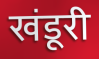
खंडूरी